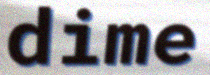
dime